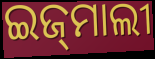
ଇଜ୍‌ମାଲୀ